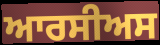
ਆਰਸੀਅਸ